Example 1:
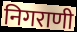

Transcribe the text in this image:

निगराणी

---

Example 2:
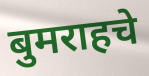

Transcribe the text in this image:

बुमराहचे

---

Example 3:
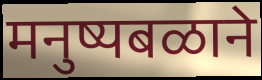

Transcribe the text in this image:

मनुष्यबळाने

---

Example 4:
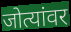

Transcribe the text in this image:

जोत्यांवर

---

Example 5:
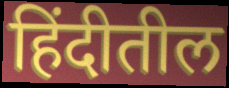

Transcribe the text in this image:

हिंदीतील